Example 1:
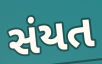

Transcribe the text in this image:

સંયત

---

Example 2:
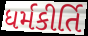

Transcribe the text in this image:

ધર્મકીર્તિ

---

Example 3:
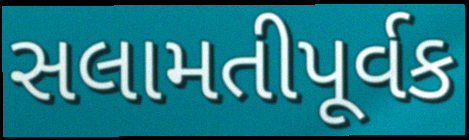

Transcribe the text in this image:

સલામતીપૂર્વક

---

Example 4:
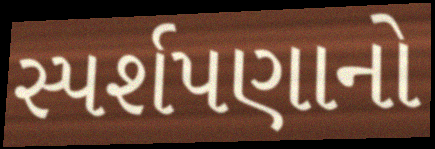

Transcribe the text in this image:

સ્પર્શપણાનો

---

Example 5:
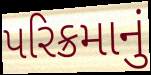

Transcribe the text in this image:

પરિક્રમાનું